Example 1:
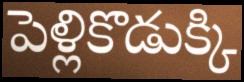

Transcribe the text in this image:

పెళ్లికొడుక్కి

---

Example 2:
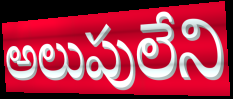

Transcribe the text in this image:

అలుపులేని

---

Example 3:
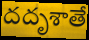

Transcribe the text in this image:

దదృశాతే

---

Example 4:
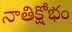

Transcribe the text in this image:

నాతిక్షోభం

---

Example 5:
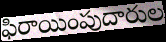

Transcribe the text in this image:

ఫిరాయింపుదారుల